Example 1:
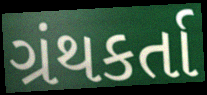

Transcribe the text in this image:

ગ્રંથકર્તા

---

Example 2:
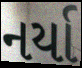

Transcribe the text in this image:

નર્યા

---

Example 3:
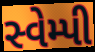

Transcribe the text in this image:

સ્વેમ્પી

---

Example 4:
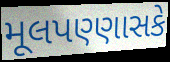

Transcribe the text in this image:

મૂલપણ્ણાસકે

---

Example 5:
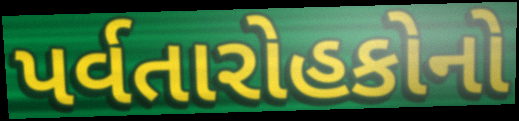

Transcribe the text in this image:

પર્વતારોહકોનો